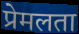
प्रेमलता